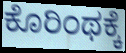
ಕೊರಿಂಥಕ್ಕೆ